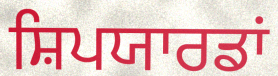
ਸ਼ਿਪਯਾਰਡਾਂ